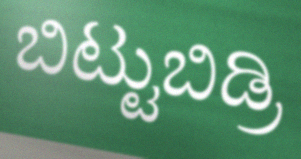
ಬಿಟ್ಟುಬಿಡ್ರಿ